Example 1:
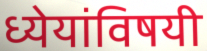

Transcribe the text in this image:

ध्येयांविषयी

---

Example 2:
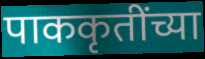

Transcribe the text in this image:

पाककृतींच्या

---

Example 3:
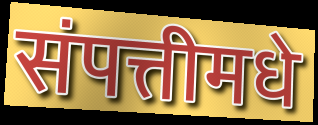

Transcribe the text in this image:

संपत्तीमधे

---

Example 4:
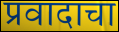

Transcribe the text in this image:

प्रवादाचा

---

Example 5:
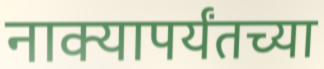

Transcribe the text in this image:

नाक्यापर्यंतच्या